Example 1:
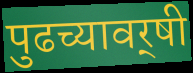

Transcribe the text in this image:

पुढच्यावर्षी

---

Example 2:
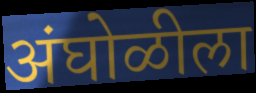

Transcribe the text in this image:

अंघोळीला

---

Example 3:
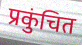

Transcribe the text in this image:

प्रकुंचित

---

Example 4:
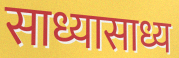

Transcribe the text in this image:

साध्यासाध्य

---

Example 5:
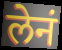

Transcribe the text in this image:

लेनं